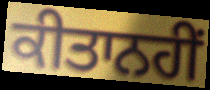
ਕੀਤਾਨਹੀਂ